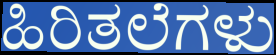
ಹಿರಿತಲೆಗಳು